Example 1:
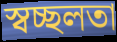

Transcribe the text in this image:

স্বচ্ছলতা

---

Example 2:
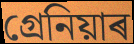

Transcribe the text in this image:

গ্ৰেনিয়াৰ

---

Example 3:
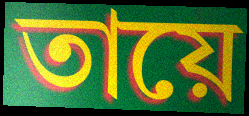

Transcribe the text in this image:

তায়ে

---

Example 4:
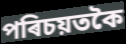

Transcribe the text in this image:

পৰিচয়তকৈ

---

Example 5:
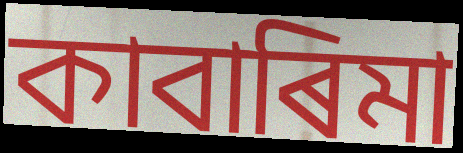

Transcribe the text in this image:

কাবাৰিমা